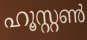
ഹൂസ്റ്റൺ